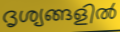
ദൃശ്യങ്ങളിൽ